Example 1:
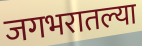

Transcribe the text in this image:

जगभरातल्या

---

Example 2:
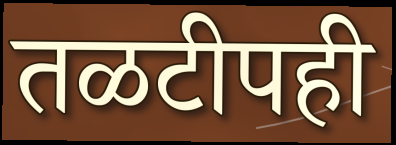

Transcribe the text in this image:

तळटीपही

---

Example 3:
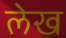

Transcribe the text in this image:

लेख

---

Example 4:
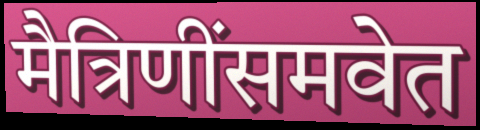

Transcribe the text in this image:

मैत्रिणींसमवेत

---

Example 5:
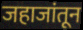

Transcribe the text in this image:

जहाजांतून